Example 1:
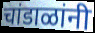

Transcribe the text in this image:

चांडाळांनी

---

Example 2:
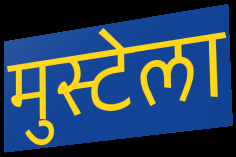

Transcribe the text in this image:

मुस्टेला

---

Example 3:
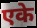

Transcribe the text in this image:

एके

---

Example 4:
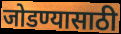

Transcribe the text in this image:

जोडण्यासाठी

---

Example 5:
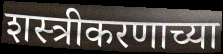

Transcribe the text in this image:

शस्त्रीकरणाच्या